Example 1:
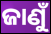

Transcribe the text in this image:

ଜାଣୁଁ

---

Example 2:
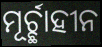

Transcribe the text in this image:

ମୂର୍ଚ୍ଛାହୀନ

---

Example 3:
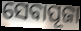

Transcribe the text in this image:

ସେବାପୂଜା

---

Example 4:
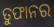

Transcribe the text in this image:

ତୁଫାନର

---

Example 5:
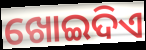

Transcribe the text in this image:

ଖୋଇଦିଏ